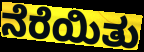
ನೆರೆಯಿತು